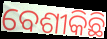
ବେଶୀକିଛି